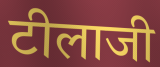
टीलाजी